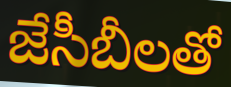
జేసీబీలతో